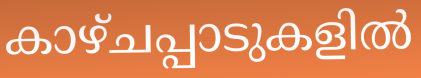
കാഴ്ചപ്പാടുകളിൽ